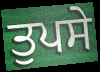
ਤੁਪਸੇ